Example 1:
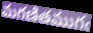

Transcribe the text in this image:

మగణితముగఁ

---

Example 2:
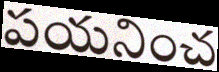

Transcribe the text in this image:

పయనించ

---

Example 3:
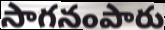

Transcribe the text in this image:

సాగనంపారు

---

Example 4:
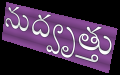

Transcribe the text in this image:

నుద్వృత్తు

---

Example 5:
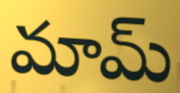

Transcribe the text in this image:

మామ్